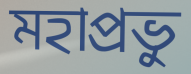
মহাপ্রভু